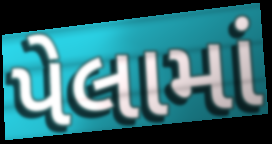
પેલામાં